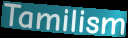
Tamilism